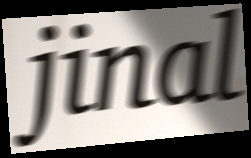
jinal